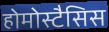
होमोस्टैसिस